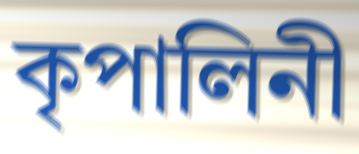
কৃপালিনী